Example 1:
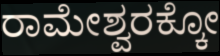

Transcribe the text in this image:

ರಾಮೇಶ್ವರಕ್ಕೋ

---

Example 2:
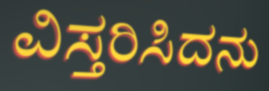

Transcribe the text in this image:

ವಿಸ್ತರಿಸಿದನು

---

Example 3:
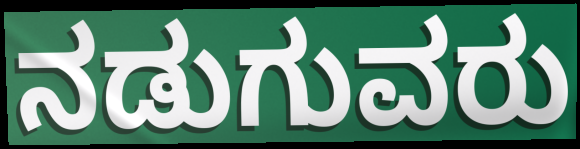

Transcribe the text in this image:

ನಡುಗುವರು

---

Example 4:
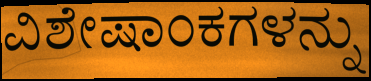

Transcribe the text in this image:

ವಿಶೇಷಾಂಕಗಳನ್ನು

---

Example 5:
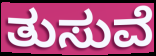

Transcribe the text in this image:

ತುಸುವೆ